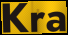
Kra